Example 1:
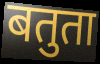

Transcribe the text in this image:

बतुता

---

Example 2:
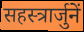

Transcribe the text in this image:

सहस्त्रार्जुनें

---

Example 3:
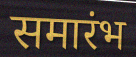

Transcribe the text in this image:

समारंभ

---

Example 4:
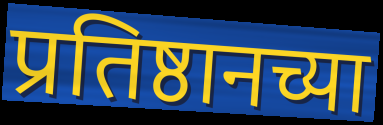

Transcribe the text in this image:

प्रतिष्ठानच्या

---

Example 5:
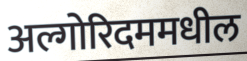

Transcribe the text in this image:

अल्गोरिदममधील